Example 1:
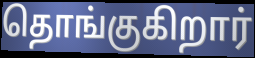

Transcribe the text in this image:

தொங்குகிறார்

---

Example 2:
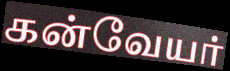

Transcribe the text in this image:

கன்வேயர்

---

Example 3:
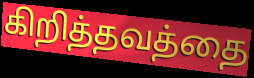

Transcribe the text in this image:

கிறித்தவத்தை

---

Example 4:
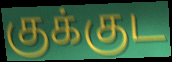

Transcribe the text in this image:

குக்குட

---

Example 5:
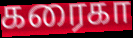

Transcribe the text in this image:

கரைகா